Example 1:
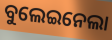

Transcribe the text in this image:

ବୁଲେଇନେଲା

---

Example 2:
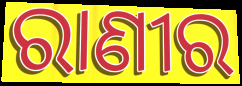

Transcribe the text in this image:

ରାଣୀର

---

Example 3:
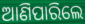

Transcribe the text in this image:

ଆଣିପାରିଲେ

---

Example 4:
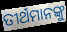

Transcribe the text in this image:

ତୀର୍ଥମାନଙ୍କୁ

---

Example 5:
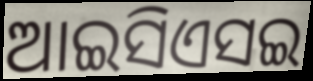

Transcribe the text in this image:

ଆଇସିଏସଇ